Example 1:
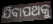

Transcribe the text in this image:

ଯିବାପଥକୁ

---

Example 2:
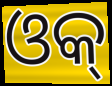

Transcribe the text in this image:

ଓକ୍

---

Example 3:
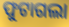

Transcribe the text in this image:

ଫୁଟାଗଲା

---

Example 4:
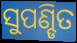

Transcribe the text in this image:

ସୁପଣ୍ଡିତ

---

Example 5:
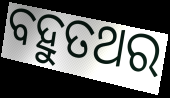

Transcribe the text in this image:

ବହୁତଥର